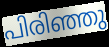
പിരിഞ്ഞു